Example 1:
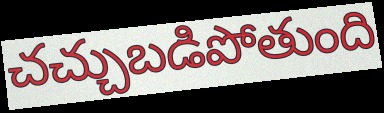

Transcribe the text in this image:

చచ్చుబడిపోతుంది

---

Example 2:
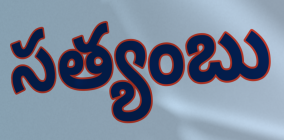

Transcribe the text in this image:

సత్యంబు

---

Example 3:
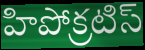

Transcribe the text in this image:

హిపోక్రటిస్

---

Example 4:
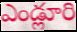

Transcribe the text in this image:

ఎండ్లూరి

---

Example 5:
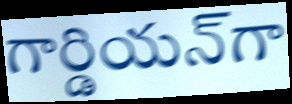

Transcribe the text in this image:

గార్డియన్‌గా